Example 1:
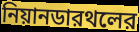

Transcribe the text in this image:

নিয়ানডারথলের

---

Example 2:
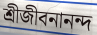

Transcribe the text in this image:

শ্রীজীবনানন্দ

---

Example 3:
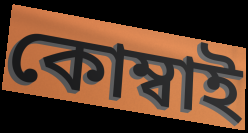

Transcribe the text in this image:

কোম্বাই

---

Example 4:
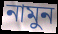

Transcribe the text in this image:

নামুন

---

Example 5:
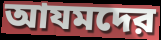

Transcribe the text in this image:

আযমদের